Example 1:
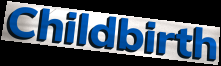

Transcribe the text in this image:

Childbirth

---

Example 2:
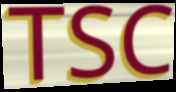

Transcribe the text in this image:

TSC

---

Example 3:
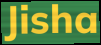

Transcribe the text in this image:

Jisha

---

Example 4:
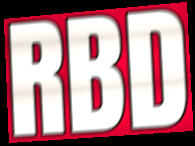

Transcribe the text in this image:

RBD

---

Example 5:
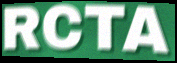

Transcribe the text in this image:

RCTA